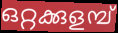
ഒറ്റക്കുളമ്പ്